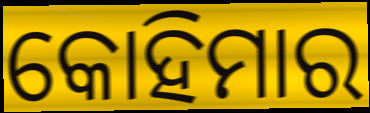
କୋହିମାର